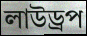
লাউড্রপ